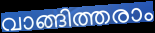
വാങ്ങിത്തരാം